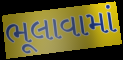
ભૂલાવામાં